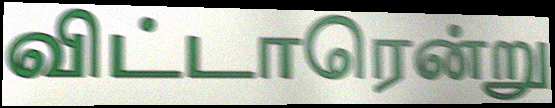
விட்டாரென்று